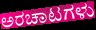
ಅರಚಾಟಗಳು